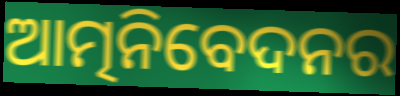
ଆତ୍ମନିବେଦନର